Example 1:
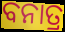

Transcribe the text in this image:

ବନାତ୍ର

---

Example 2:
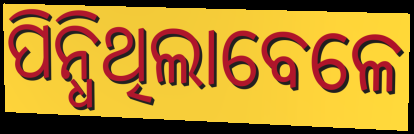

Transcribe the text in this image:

ପିନ୍ଧିଥିଲାବେଳେ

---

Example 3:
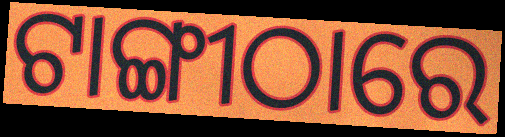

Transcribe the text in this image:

ଟାଙ୍ଗୀଠାରେ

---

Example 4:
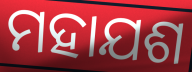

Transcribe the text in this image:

ମହାଯଶ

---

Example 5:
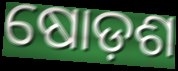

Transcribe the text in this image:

ଷୋଡ଼ଶ